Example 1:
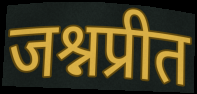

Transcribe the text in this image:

जश्नप्रीत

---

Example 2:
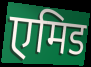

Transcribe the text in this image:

एमिड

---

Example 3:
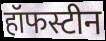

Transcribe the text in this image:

हॉफस्टीन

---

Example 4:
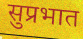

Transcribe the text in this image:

सुप्रभात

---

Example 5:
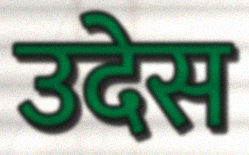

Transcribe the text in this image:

उदेस